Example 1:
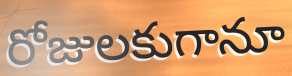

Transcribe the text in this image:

రోజులకుగానూ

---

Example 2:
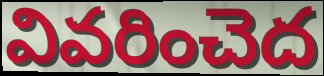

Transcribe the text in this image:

వివరించెద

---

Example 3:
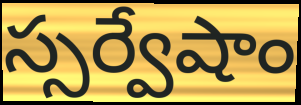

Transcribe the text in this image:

స్సర్వేషాం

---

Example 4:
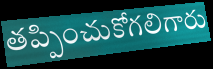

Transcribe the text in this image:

తప్పించుకోగలిగారు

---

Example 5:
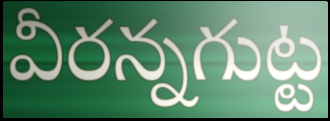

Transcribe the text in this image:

వీరన్నగుట్ట